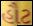
હૌટ